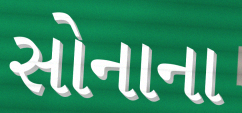
સોનાના